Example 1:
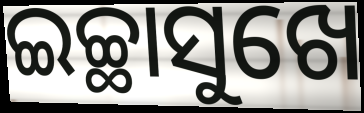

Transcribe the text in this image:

ଇଚ୍ଛାସୁଖେ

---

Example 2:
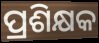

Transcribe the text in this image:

ପ୍ରଶିକ୍ଷକ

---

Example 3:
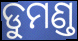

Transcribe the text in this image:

ଡୁମଣ୍ଡ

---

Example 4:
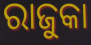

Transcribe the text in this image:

ରାଜୁକା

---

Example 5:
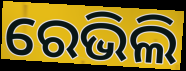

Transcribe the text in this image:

ରେଭିଲି